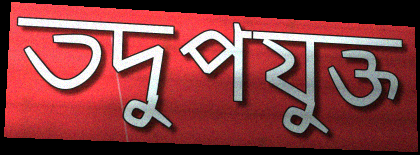
তদুপযুক্ত